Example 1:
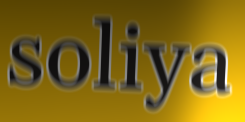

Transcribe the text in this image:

soliya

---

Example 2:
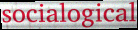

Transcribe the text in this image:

socialogical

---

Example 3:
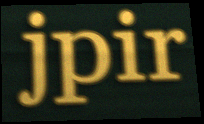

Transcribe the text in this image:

jpir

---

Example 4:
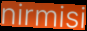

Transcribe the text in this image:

nirmisi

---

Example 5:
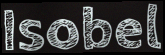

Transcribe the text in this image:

Isobel